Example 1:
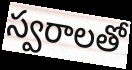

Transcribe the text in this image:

స్వరాలతో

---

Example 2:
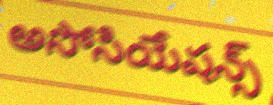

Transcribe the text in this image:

అసోసియేషన్స్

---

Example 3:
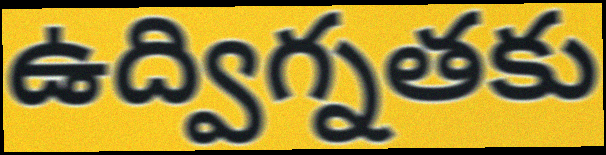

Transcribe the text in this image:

ఉద్విగ్నతకు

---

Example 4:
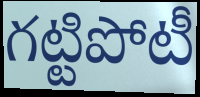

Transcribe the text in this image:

గట్టిపోటీ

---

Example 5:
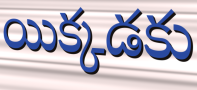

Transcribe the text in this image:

యిక్కడకు